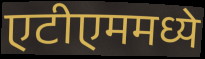
एटीएममध्ये